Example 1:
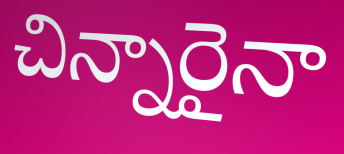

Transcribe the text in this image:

చిన్నారైనా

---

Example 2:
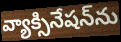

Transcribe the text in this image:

వ్యాక్సినేషన్‌ను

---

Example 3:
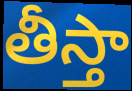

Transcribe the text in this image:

తీస్తా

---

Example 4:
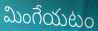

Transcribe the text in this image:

మింగేయటం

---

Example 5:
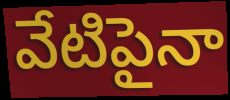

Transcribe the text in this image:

వేటిపైనా